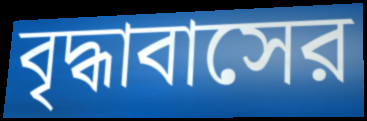
বৃদ্ধাবাসের